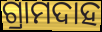
ଗ୍ରାମଦାହ